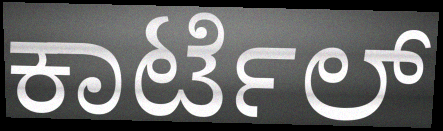
ಕಾರ್ಟೆಲ್